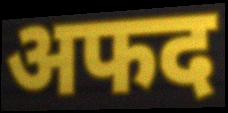
अफद